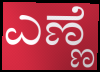
ಎಣ್ಣೆ